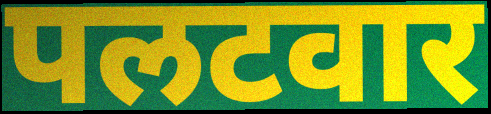
पलटवार